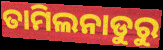
ତାମିଲନାଡୁରୁ